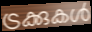
ട്രക്കുകൾ